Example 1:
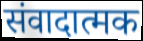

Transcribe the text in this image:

संवादात्मक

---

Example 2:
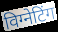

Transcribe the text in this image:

विग्नेटिंग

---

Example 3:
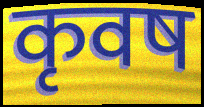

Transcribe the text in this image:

कृवष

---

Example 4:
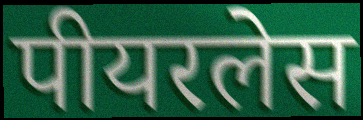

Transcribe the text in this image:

पीयरलेस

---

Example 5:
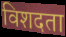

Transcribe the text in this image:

विशदता